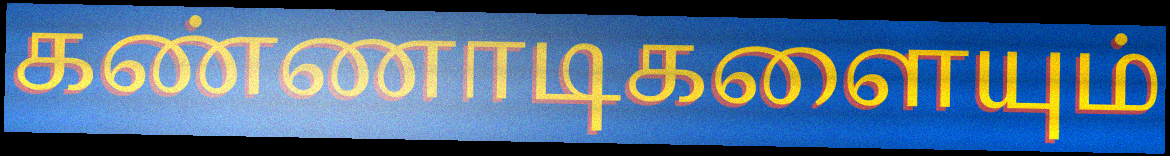
கண்ணாடிகளையும்